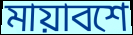
মায়াবশে